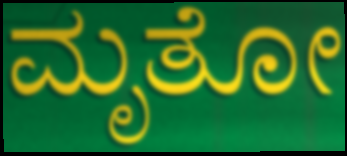
ಮೃತೋ